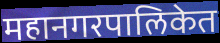
महानगरपालिकेत